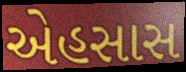
એહસાસ